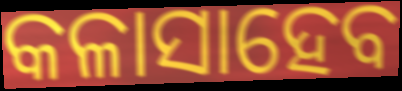
କଳାସାହେବ